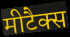
मीटैक्स